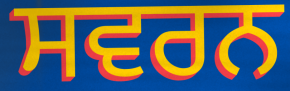
ਸਵਰਨ